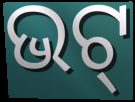
ଭଟ୍